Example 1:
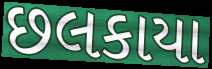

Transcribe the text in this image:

છલકાયા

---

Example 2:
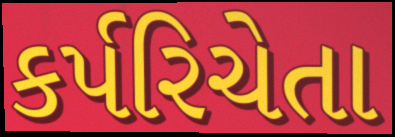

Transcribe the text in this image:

કર્પરિચેતા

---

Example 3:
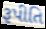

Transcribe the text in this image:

રૂપીતિ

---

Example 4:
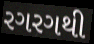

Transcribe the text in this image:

રગરગથી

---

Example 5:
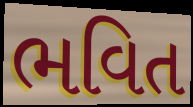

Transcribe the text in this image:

ભવિત